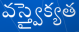
వస్త్వైక్యత